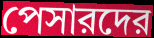
পেসারদের